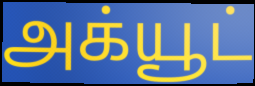
அக்யூட்